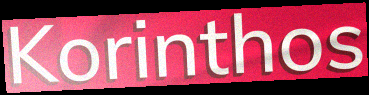
Korinthos